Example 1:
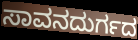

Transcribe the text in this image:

ಸಾವನದುರ್ಗದ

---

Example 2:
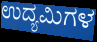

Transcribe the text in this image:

ಉದ್ಯಮಿಗಳ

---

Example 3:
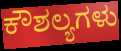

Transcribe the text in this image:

ಕೌಶಲ್ಯಗಳು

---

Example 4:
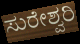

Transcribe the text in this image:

ಸುರೇಶ್ವರಿ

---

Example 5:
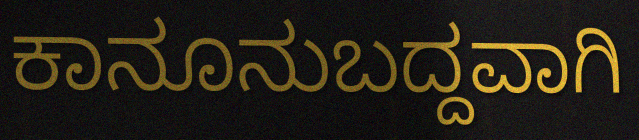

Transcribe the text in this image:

ಕಾನೂನುಬದ್ದವಾಗಿ